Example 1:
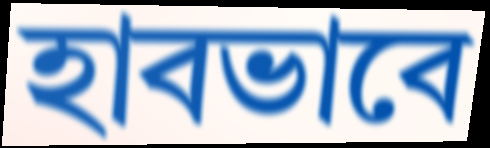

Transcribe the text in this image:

হাবভাবে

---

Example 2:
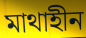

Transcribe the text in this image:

মাথাহীন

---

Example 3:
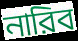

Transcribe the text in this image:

নারিব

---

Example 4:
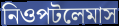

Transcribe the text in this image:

নিওপটলেমাস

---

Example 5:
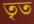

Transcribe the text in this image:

তৃত